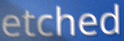
etched